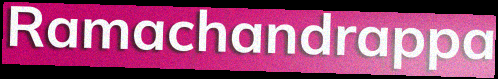
Ramachandrappa